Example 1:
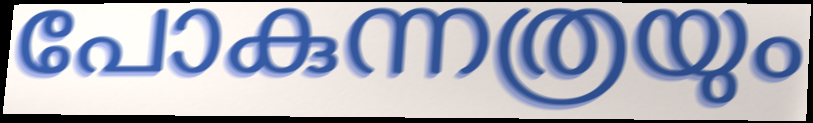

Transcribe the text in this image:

പോകുന്നത്രയും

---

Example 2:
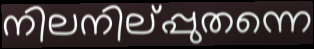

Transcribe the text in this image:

നിലനില്പ്പുതന്നെ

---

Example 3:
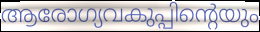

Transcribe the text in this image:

ആരോഗ്യവകുപ്പിന്റെയും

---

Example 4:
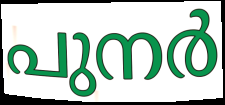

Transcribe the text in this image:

പുനർ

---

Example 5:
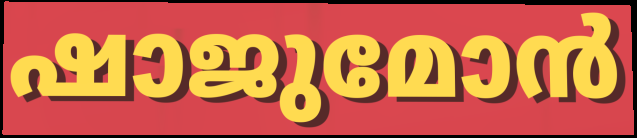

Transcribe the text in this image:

ഷാജുമോൻ